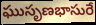
ఘుసృణభాసురే